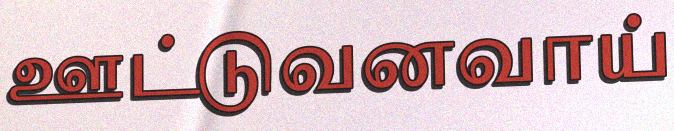
ஊட்டுவனவாய்